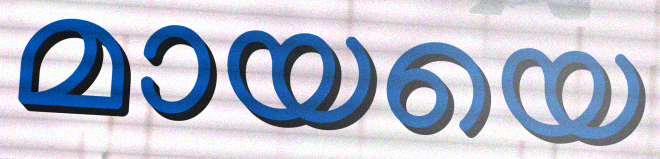
മായയെ